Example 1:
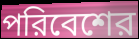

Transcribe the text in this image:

পরিবেশের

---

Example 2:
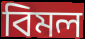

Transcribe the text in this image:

বিমল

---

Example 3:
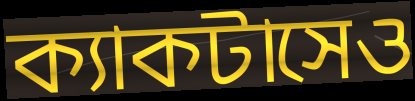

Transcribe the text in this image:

ক্যাকটাসেও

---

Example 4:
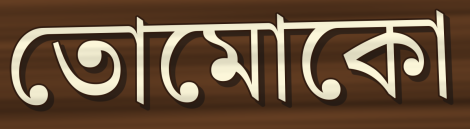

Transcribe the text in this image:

তোমোকো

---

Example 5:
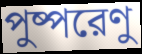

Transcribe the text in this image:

পুষ্পরেণু